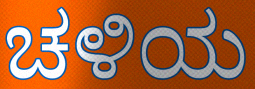
ಚಳಿಯ